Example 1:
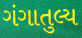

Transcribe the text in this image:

ગંગાતુલ્ય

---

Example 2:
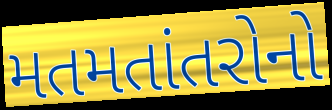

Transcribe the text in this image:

મતમતાંતરોનો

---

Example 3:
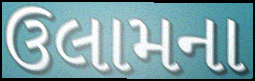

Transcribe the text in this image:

ઉલામના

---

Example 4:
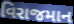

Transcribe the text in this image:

વિરાજમાન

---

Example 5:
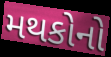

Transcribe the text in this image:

મથકોનો